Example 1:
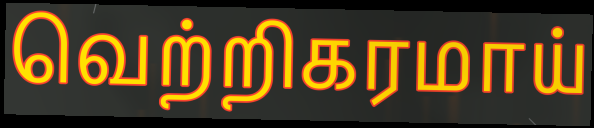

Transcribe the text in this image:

வெற்றிகரமாய்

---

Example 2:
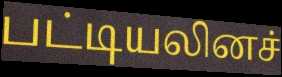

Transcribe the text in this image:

பட்டியலினச்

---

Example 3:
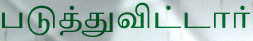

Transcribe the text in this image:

படுத்துவிட்டார்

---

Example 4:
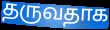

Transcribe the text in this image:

தருவதாக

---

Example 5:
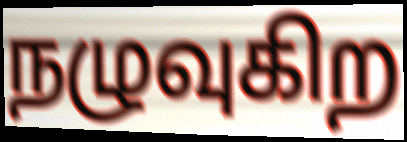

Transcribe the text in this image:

நழுவுகிற